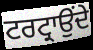
ਟਰਟ੍ਰਾਉਂਦੇ